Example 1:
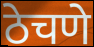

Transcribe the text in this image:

ठेचणे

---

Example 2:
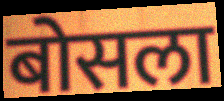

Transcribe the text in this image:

बोसला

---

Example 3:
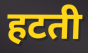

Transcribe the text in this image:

हटती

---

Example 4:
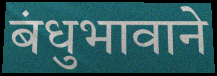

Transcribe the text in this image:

बंधुभावाने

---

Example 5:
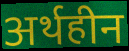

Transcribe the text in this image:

अर्थहीन